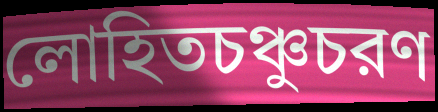
লোহিতচঞ্চুচরণ